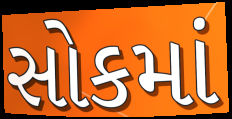
સોકમાં